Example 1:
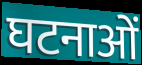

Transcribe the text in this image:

घटनाओं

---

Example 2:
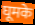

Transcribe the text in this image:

घूमके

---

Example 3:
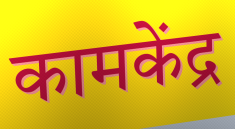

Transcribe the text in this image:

कामकेंद्र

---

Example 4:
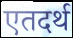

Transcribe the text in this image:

एतदर्थ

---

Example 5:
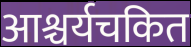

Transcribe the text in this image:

आश्चर्यचकित